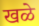
खळे